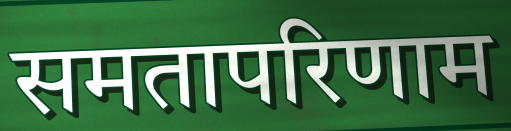
समतापरिणाम